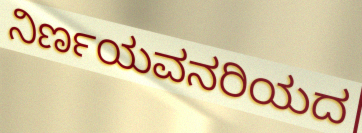
ನಿರ್ಣಯವನರಿಯದ